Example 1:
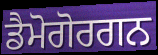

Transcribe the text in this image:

ਡੈਮੋਗੋਰਗਨ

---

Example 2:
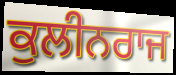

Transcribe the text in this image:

ਕੁਲੀਨਰਾਜ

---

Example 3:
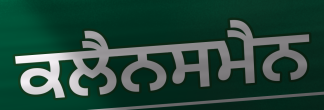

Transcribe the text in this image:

ਕਲੈਨਸਮੈਨ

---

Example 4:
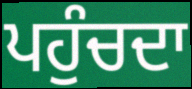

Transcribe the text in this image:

ਪਹੁੰਚਦਾ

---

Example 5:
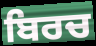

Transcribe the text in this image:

ਬਿਰਚ